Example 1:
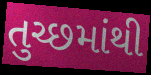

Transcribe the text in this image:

તુચ્છમાંથી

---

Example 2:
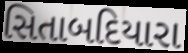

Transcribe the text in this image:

સિતાબદિયારા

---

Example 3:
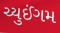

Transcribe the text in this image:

ચ્યુઈંગમ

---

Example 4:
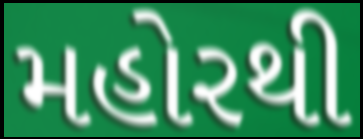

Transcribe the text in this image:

મહોરથી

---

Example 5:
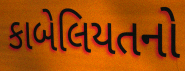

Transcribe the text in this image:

કાબેલિયતનો